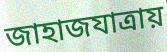
জাহাজযাত্রায়